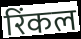
रिंकल